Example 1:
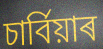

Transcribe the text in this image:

চাৰ্বিয়াৰ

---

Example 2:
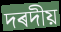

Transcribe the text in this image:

দৰদীয়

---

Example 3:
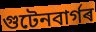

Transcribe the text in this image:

গুটেনবাৰ্গৰ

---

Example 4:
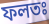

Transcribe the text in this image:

ফলতঃ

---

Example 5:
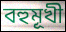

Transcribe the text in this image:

বহুমূখী